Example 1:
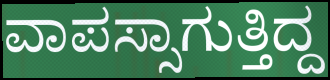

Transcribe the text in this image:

ವಾಪಸ್ಸಾಗುತ್ತಿದ್ದ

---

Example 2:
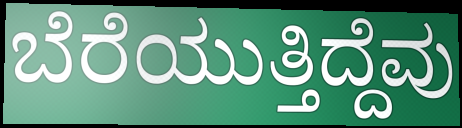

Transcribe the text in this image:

ಬೆರೆಯುತ್ತಿದ್ದೆವು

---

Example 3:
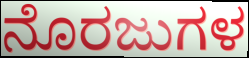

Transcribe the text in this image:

ನೊರಜುಗಳ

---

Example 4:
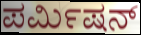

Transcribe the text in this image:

ಪರ್ಮಿಷನ್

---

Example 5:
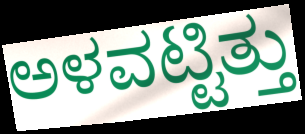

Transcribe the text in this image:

ಅಳವಟ್ಟಿತ್ತು